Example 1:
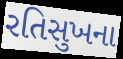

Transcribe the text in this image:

રતિસુખના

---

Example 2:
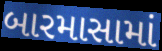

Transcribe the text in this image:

બારમાસામાં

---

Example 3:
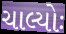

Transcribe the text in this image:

ચાલ્યોઃ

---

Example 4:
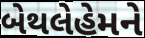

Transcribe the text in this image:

બેથલેહેમને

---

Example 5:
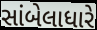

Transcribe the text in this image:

સાંબેલાધારે